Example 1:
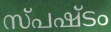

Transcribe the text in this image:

സ്പഷ്ടം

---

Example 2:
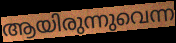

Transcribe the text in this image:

ആയിരുന്നുവെന്ന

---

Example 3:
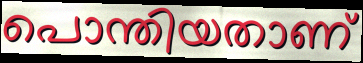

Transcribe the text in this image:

പൊന്തിയതാണ്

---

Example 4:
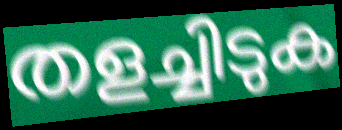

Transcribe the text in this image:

തളച്ചിടുക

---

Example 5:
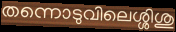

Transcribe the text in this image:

തന്നൊടുവിലെശ്ശിശു